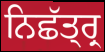
ਨਿਛੱਤ੍ਰ੍ਰ